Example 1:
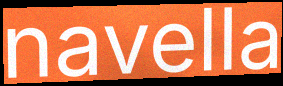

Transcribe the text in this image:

navella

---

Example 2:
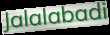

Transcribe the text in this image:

Jalalabadi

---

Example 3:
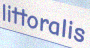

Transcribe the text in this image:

littoralis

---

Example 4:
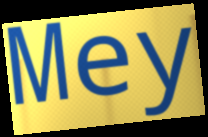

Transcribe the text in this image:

Mey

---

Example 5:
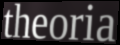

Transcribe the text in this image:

theoria